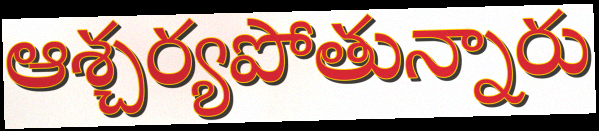
ఆశ్చర్యపోతున్నారు